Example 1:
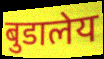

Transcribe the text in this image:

बुडालेय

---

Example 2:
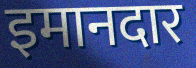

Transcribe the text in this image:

इमानदार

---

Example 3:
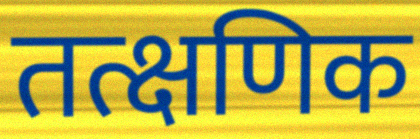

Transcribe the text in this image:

तत्क्षणिक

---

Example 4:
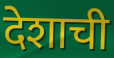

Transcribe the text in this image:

देशाची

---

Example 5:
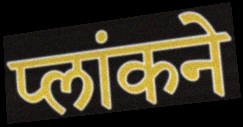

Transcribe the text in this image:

प्लांकने